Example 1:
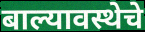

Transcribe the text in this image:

बाल्यावस्थेचे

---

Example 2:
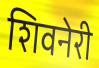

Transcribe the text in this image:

शिवनेरी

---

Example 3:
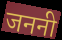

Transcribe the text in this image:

जननी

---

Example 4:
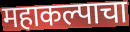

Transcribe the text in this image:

महाकल्पाचा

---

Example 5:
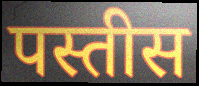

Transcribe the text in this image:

पस्तीस